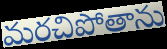
మరచిపోతాను